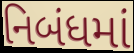
નિબંધમાં